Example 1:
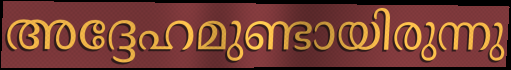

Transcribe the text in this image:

അദ്ദേഹമുണ്ടായിരുന്നു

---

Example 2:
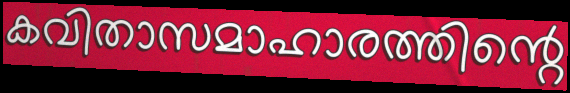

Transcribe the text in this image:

കവിതാസമാഹാരത്തിന്റെ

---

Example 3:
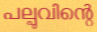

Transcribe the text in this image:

പല്പുവിന്റെ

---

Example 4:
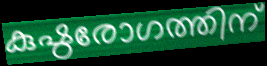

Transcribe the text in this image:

കുഷ്ഠരോഗത്തിന്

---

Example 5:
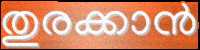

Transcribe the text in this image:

തുരക്കാൻ